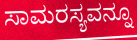
ಸಾಮರಸ್ಯವನ್ನೂ